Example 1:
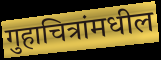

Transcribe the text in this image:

गुहाचित्रांमधील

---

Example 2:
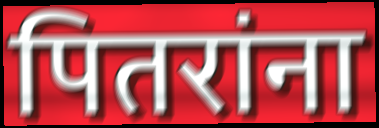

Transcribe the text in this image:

पितरांना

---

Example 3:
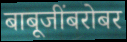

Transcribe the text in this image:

बाबूजींबरोबर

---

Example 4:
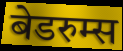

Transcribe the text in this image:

बेडरुम्स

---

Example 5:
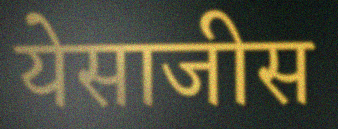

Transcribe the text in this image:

येसाजीस